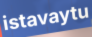
istavaytu